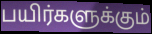
பயிர்களுக்கும்